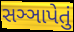
સઞ્ઞાપેતું